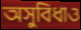
অসুবিধাও